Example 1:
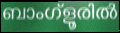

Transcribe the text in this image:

ബാംഗ്ളൂരിൽ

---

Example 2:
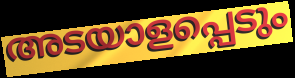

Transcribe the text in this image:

അടയാളപ്പെടും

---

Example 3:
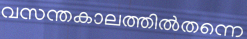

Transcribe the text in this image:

വസന്തകാലത്തിൽതന്നെ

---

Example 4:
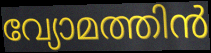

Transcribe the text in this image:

വ്യോമത്തിൻ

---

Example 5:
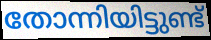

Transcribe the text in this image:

തോന്നിയിട്ടുണ്ട്